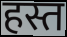
हस्त